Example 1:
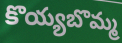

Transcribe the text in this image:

కొయ్యబొమ్మ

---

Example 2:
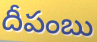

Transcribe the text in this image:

దీపంబు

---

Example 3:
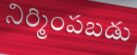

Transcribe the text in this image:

నిర్మింపబడు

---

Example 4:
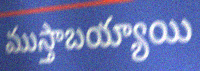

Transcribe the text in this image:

ముస్తాబయ్యాయి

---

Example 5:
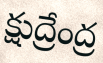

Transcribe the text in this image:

క్షుద్రేంద్ర